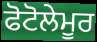
ਫੋਟੋਲੇਮੂਰ